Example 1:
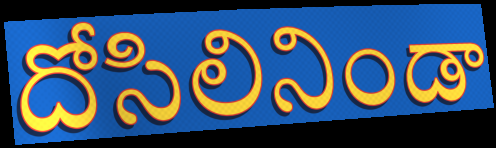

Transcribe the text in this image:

దోసిలినిండా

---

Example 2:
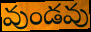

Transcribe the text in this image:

వుండవు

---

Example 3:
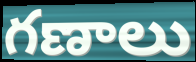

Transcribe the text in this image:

గణాలు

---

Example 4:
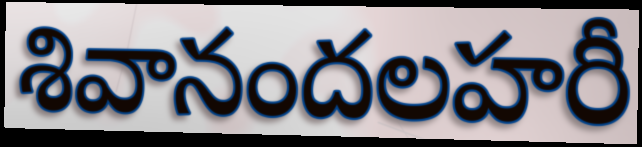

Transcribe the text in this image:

శివానందలహరీ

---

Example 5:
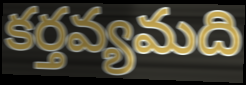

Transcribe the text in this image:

కర్తవ్యమది